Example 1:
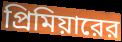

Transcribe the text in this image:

প্রিমিয়ারের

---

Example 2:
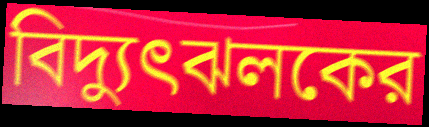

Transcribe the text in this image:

বিদ্যুৎঝলকের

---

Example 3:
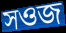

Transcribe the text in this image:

সওজ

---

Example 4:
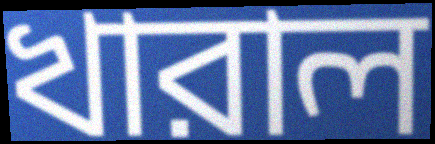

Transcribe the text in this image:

খারাল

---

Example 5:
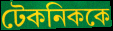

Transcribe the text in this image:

টেকনিককে